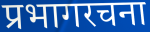
प्रभागरचना